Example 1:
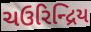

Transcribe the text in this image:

ચઉરિન્દ્રિય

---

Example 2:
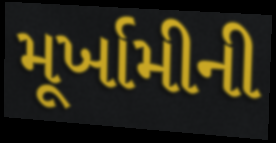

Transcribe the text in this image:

મૂર્ખામીની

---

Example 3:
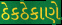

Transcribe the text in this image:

ઠેકઠેકાણે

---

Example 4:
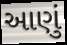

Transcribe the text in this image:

આણું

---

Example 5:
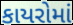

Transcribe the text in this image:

કાયરોમાં